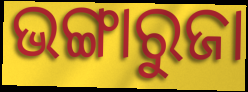
ଭଙ୍ଗାରୁଜା